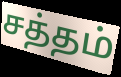
சத்தம்